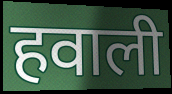
हवाली